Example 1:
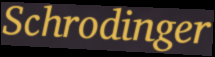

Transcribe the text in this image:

Schrodinger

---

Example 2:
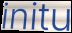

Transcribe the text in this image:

initu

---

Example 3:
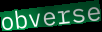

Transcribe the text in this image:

obverse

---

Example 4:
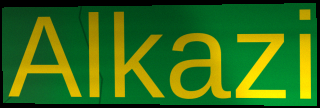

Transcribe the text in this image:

Alkazi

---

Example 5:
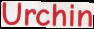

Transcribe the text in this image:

Urchin